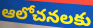
ఆలోచనలకు